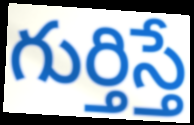
గుర్తిస్తే